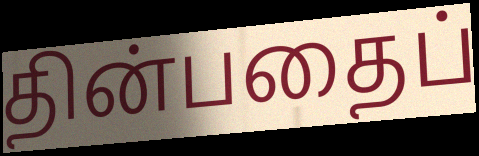
தின்பதைப்